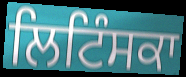
ਲਿਟਿੰਸਕਾ